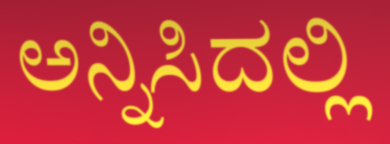
ಅನ್ನಿಸಿದಲ್ಲಿ